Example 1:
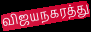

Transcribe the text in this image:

விஜயநகரத்து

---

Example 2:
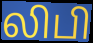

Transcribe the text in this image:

லிபி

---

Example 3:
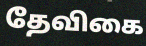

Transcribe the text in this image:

தேவிகை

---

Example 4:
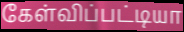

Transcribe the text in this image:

கேள்விப்பட்டியா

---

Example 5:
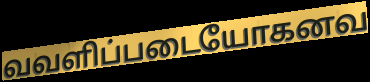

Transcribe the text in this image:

வவளிப்படையோகனவ